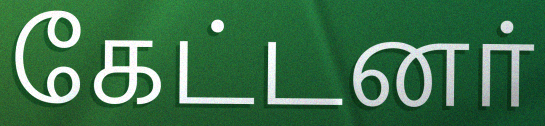
கேட்டனர்